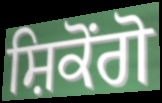
ਸ਼ਿਕੋਂਗੋ